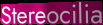
Stereocilia